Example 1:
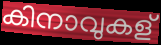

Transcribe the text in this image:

കിനാവുകള്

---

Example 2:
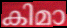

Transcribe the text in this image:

കിമാ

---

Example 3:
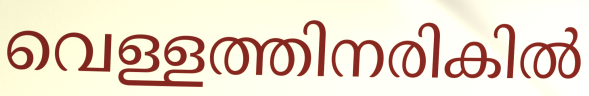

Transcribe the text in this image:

വെള്ളത്തിനരികിൽ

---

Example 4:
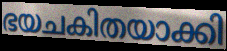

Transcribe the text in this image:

ഭയചകിതയാക്കി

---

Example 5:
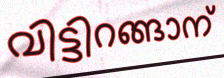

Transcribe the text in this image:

വിട്ടിറങ്ങാന്